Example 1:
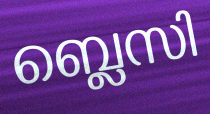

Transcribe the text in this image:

ബ്ലെസി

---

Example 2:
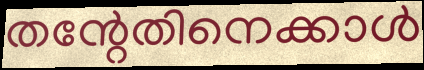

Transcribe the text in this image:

തന്റേതിനെക്കാൾ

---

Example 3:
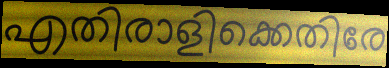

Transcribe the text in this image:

എതിരാളിക്കെതിരേ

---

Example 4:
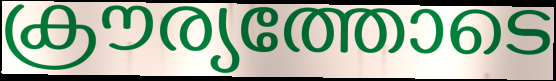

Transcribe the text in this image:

ക്രൗര്യത്തോടെ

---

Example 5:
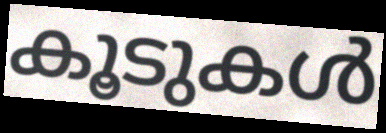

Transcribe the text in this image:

കൂടുകൾ